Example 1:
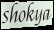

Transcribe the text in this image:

shokya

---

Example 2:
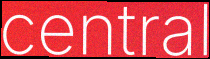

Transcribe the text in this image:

central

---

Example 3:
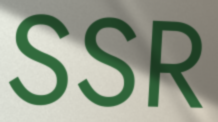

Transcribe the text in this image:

SSR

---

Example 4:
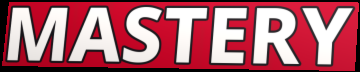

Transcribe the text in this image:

MASTERY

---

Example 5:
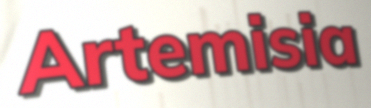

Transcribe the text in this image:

Artemisia